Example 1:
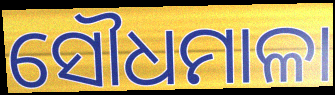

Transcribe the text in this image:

ସୌଧମାଳା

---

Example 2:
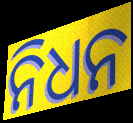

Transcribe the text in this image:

ନିଧନ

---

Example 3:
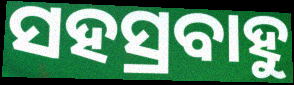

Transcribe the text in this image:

ସହସ୍ରବାହୁ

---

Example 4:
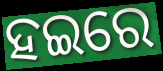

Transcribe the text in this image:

ହଇରେ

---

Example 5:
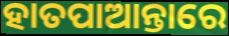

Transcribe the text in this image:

ହାତପାଆନ୍ତାରେ